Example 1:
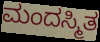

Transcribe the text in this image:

ಮಂದಸ್ಮಿತ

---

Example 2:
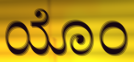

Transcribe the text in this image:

ಯೊಂ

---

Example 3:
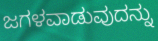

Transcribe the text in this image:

ಜಗಳವಾಡುವುದನ್ನು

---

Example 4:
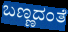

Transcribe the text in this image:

ಬಣ್ಣದಂತೆ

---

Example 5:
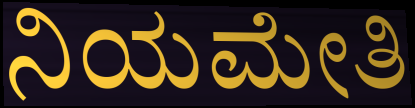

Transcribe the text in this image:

ನಿಯಮೇತಿ